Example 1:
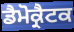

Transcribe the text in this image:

ਡੈਮੋਕ੍ਰੈਟਕ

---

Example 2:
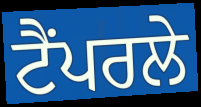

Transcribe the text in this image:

ਟੈਂਪਰਲੇ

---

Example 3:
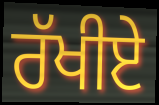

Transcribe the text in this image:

ਰੱਖੀਏ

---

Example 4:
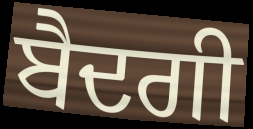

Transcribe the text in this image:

ਬੈਦਗੀ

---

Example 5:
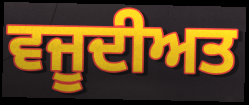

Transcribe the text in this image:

ਵਜੂਦੀਅਤ